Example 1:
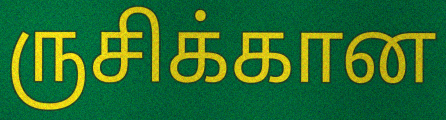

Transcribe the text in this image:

ருசிக்கான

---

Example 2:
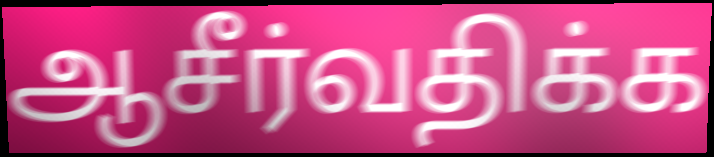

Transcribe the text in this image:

ஆசீர்வதிக்க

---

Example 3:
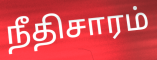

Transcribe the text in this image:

நீதிசாரம்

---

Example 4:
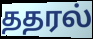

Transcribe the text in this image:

ததரல்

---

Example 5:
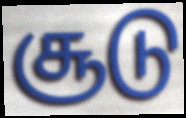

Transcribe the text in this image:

சூடு